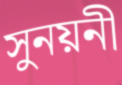
সুনয়নী